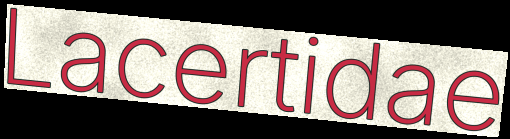
Lacertidae